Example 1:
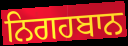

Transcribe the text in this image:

ਨਿਗਹਬਾਨ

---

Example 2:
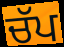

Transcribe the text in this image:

ਚੱਪ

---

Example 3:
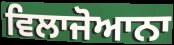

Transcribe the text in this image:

ਵਿਲਾਜੋਆਨਾ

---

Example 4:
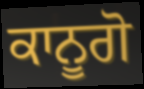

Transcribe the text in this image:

ਕਾਨੂਗੋ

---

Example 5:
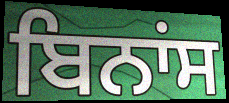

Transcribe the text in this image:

ਬਿਨਾਂਸ